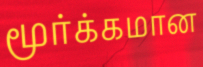
மூர்க்கமான